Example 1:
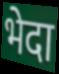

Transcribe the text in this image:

भेदा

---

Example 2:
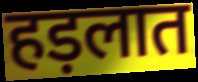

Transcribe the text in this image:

हड़लात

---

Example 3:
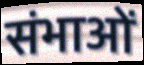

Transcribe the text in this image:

संभाओं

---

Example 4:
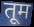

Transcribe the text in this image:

तूम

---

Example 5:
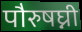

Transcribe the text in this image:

पौरुषघ्नी